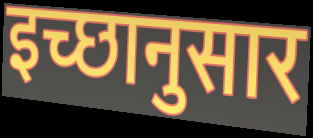
इच्छानुसार